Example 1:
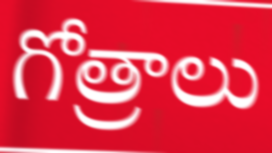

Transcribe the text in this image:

గోత్రాలు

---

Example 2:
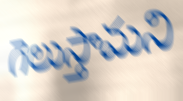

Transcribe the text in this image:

గెలుస్తామని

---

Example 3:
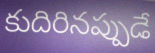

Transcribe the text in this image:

కుదిరినప్పుడే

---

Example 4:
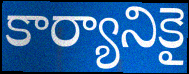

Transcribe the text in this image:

కార్యానికై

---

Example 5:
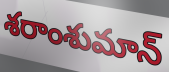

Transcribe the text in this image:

శరాంశుమాన్